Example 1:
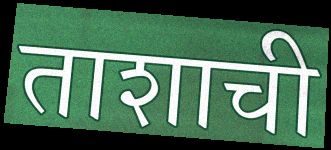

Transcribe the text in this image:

ताशाची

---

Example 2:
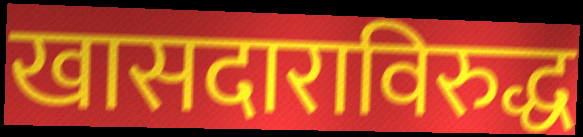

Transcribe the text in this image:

खासदाराविरुद्ध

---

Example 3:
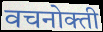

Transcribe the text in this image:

वचनोक्ती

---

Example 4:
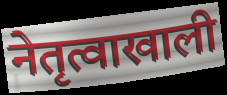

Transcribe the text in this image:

नेतृत्वाखाली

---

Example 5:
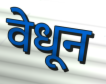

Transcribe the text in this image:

वेधून